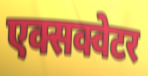
एक्सक्वेटर